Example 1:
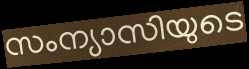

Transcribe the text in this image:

സംന്യാസിയുടെ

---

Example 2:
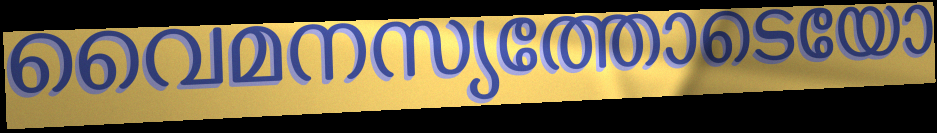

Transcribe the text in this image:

വൈമനസ്യത്തോടെയോ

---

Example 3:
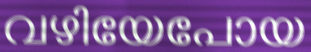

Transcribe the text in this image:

വഴിയേപോയ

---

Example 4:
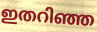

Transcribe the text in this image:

ഇതറിഞ്ഞ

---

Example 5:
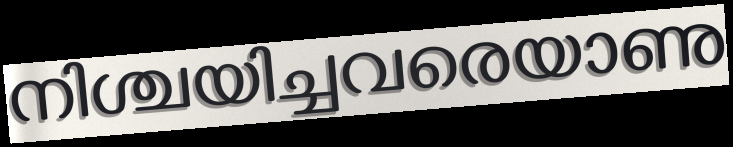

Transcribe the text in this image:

നിശ്ചയിച്ചവരെയാണു